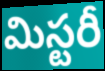
మిస్టరీ